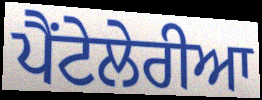
ਪੈਂਟੇਲੇਰੀਆ